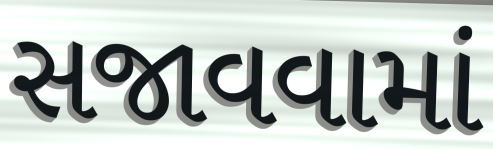
સજાવવામાં